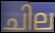
ചില